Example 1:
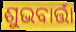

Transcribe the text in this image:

ଶୁଭବାର୍ତ୍ତା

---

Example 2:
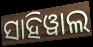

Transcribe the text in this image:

ସାହିୱାଲ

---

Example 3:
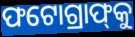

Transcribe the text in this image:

ଫଟୋଗ୍ରାଫ୍‌କୁ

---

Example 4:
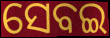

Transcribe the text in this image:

ସେବଇ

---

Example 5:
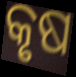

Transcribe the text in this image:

କୃଷ